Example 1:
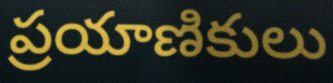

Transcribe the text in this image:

ప్రయాణికులు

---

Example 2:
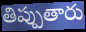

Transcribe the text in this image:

తిప్పుతారు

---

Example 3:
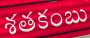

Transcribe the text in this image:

శతకంబు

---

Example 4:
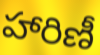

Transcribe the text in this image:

హారిణీ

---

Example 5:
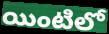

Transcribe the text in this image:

యింటిలో